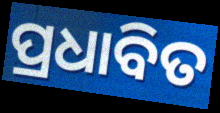
ପ୍ରଧାବିତ